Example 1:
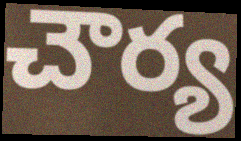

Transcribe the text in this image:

చౌర్య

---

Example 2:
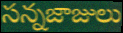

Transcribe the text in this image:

సన్నజాజులు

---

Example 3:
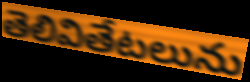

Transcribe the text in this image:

తెలివితేటలును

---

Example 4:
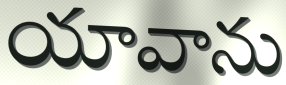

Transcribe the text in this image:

యావాను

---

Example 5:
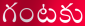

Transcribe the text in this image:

గంటకు